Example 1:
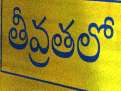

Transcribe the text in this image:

తీవ్రతలో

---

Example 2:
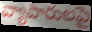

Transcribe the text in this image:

వ్యాపారులపై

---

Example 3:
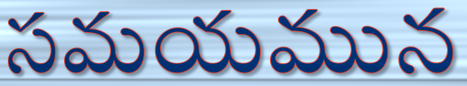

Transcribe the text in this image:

సమయమున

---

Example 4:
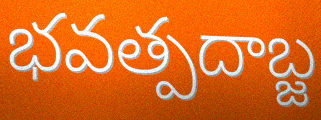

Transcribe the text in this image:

భవత్పదాబ్జ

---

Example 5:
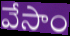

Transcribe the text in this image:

వేసాం